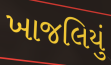
ખાજલિયું